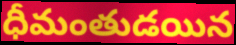
ధీమంతుడయిన